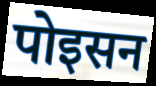
पोइसन